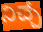
నిచ్చే